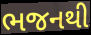
ભજનથી